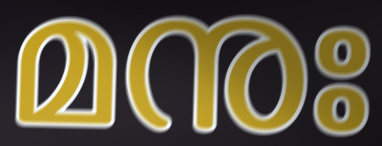
മനുഃ